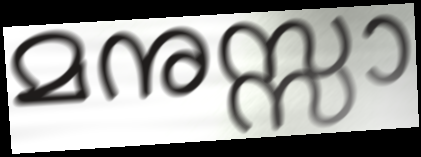
മനുസ്സാ